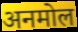
अनमोल